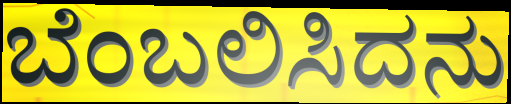
ಬೆಂಬಲಿಸಿದನು